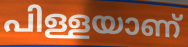
പിള്ളയാണ്